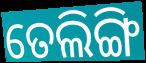
ତେଲିଙ୍ଗି